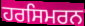
ਹਰਸਿਮਰਨ